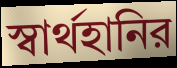
স্বার্থহানির